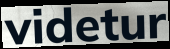
videtur